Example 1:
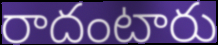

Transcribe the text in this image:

రాదంటారు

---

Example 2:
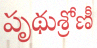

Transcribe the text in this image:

పృథుశ్రోణీ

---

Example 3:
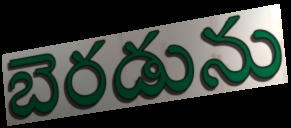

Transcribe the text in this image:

బెరడును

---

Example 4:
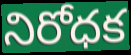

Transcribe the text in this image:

నిరోధక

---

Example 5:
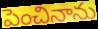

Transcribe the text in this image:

పెంచినాను